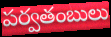
పర్వతంబులు